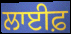
ਲਾਈਫ਼